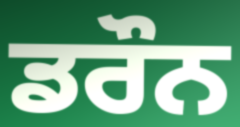
ਡਰੌਨ